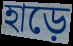
হাড়ে